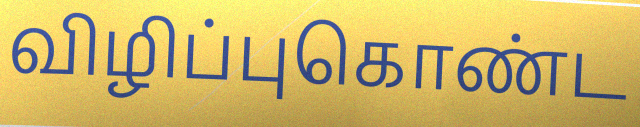
விழிப்புகொண்ட